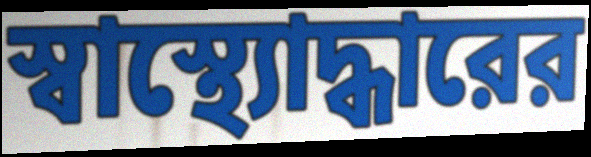
স্বাস্থ্যোদ্ধারের